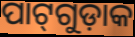
ପାଟ୍‌ଗୁଡ଼ାକ